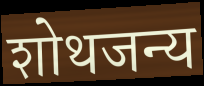
शोथजन्य